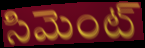
సిమెంట్